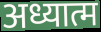
अध्यात्म